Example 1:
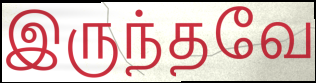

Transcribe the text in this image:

இருந்தவே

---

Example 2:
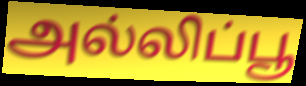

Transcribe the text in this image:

அல்லிப்பூ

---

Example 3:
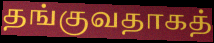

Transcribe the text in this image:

தங்குவதாகத்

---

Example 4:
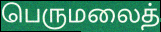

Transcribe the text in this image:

பெருமலைத்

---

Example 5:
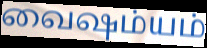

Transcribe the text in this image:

வைஷம்யம்